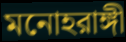
মনোহরাঙ্গী